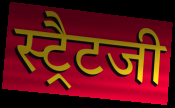
स्‍ट्रैटजी